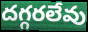
దగ్గరలేవు